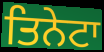
ਤਿਨੇਟਾ